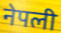
नेपली